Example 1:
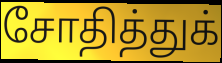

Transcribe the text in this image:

சோதித்துக்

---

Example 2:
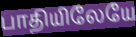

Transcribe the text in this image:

பாதியிலேயே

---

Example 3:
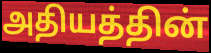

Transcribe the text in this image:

அதியத்தின்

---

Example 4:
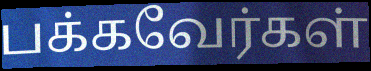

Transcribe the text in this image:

பக்கவேர்கள்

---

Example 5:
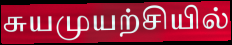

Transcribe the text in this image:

சுயமுயற்சியில்